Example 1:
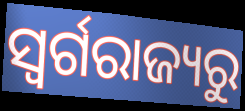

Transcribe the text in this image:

ସ୍ବର୍ଗରାଜ୍ୟରୁ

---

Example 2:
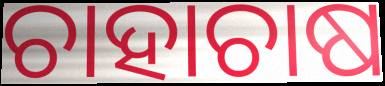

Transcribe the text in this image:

ଚାହାଚାଷ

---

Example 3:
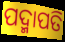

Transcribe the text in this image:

ପଦ୍ମାପତି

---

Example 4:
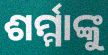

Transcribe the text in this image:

ଶର୍ମ୍ମାଙ୍କୁ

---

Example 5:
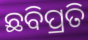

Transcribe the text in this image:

ଛବିପ୍ରତି